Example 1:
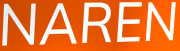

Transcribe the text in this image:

NAREN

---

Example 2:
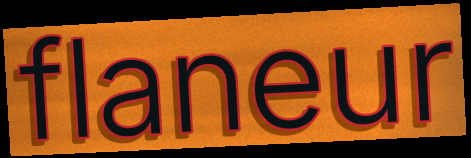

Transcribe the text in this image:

flaneur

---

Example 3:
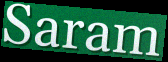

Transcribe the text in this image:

Saram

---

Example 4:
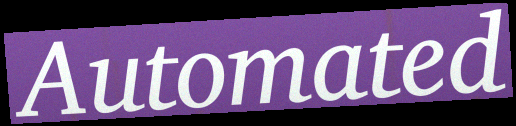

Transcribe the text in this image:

Automated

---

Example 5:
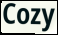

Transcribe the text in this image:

Cozy